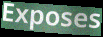
Exposes